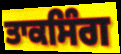
ਤਾਕਸਿੰਗ